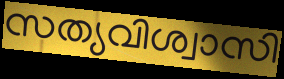
സത്യവിശ്വാസി